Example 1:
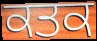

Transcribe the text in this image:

ਕਤਕ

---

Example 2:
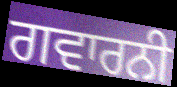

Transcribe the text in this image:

ਗਵਾਰਨੀ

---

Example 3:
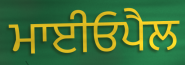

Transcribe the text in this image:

ਮਾਈਓਪੈਲ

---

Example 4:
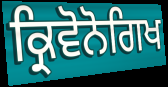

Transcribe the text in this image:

ਕ੍ਰਿਵੋਨੋਗਿਖ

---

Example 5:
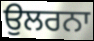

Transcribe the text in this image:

ਉਲਰਨਾ